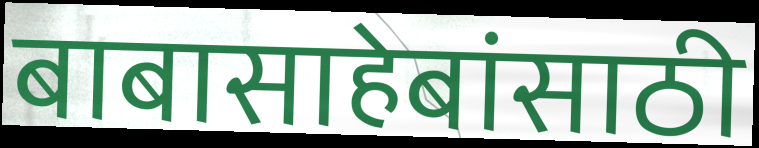
बाबासाहेबांसाठी